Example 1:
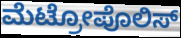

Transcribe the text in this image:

ಮೆಟ್ರೋಪೊಲಿಸ್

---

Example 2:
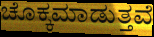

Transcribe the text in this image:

ಚೊಕ್ಕಮಾಡುತ್ತವೆ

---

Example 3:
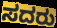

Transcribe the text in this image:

ಸದರು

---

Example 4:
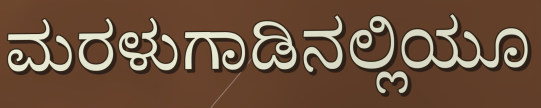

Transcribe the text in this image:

ಮರಳುಗಾಡಿನಲ್ಲಿಯೂ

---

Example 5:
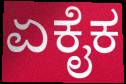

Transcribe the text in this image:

ಏಕೈಕ